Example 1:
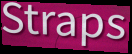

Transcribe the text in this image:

Straps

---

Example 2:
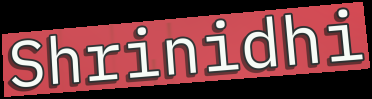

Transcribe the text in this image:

Shrinidhi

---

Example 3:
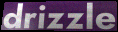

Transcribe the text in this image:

drizzle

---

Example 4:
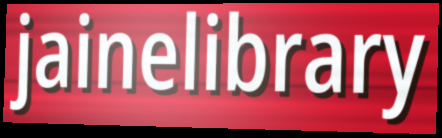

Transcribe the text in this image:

jainelibrary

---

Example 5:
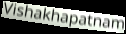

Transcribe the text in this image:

Vishakhapatnam